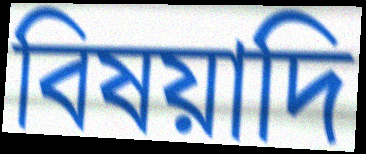
বিষয়াদি